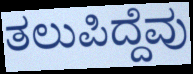
ತಲುಪಿದ್ದೆವು